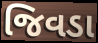
જિવડા